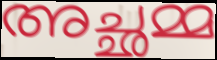
അച്ഛമ്മ